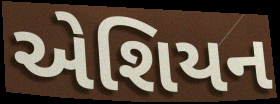
એશિયન